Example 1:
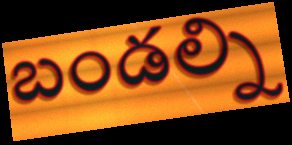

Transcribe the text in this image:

బండల్ని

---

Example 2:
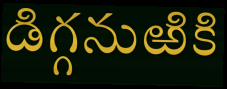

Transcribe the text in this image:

డిగ్గనుఱికి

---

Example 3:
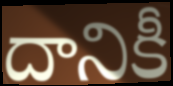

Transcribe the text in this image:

దానికీ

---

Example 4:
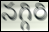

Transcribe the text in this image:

నగ్గిరి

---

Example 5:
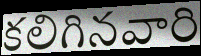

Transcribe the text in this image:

కలిగినవారి